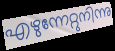
എഴുന്നേറ്റുനിന്നു